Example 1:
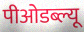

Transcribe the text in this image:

पीओडब्ल्यू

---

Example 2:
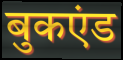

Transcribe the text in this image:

बुकएंड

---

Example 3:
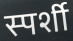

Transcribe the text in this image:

स्पर्शी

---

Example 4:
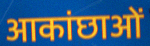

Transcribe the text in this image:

आकांछाओं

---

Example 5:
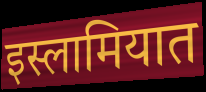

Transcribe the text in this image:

इस्लामियात